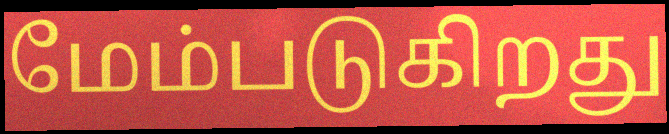
மேம்படுகிறது